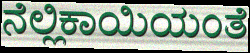
ನೆಲ್ಲಿಕಾಯಿಯಂತೆ